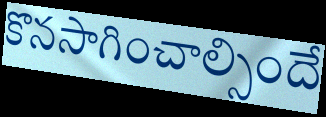
కొనసాగించాల్సిందే